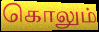
கொலும்